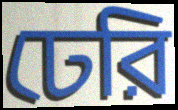
ঢেরি